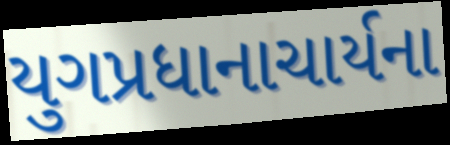
યુગપ્રધાનાચાર્યના